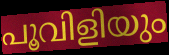
പൂവിളിയും